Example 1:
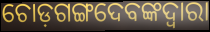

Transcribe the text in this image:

ଚୋଡ଼ଗଙ୍ଗଦେବଙ୍କଦ୍ୱାରା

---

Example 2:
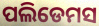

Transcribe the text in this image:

ପଲିଡେମସ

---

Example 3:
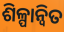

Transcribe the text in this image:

ଶିଳ୍ପାନ୍ବିତ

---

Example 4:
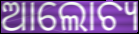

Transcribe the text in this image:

ଆଲୋଚ୍ୟ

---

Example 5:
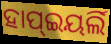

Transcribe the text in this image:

ହାପ୍ଇୟର୍ଲି